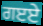
ਗੲਏ